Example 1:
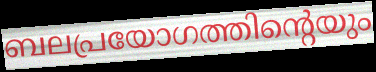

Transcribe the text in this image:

ബലപ്രയോഗത്തിന്റെയും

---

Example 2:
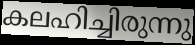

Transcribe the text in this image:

കലഹിച്ചിരുന്നു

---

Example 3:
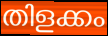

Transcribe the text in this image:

തിളക്കം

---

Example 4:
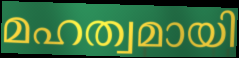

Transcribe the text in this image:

മഹത്വമായി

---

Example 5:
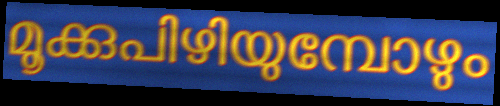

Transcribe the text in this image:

മൂക്കുപിഴിയുമ്പോഴും